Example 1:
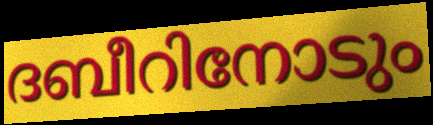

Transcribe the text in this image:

ദബീറിനോടും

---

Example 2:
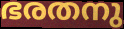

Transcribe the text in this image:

ഭരതനു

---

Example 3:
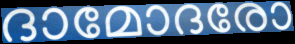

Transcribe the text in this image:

ദാമോദരോ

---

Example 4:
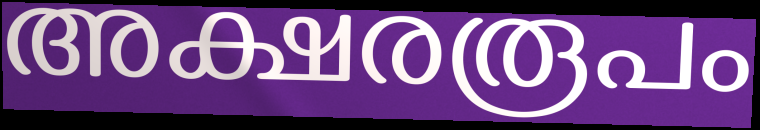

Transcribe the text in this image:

അക്ഷരരൂപം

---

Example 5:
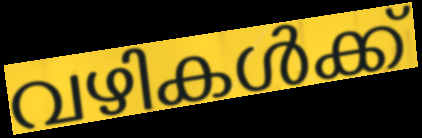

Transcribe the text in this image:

വഴികൾക്ക്